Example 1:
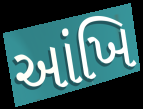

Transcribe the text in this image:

આંખિ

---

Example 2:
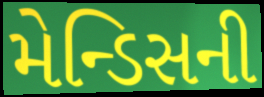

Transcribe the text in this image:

મેન્ડિસની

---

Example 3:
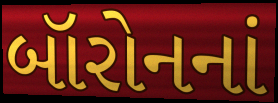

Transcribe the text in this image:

બૉરોનનાં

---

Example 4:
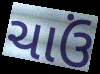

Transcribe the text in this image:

ચાઉં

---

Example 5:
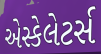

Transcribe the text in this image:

એસ્કેલેટર્સ